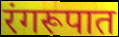
रंगरूपात